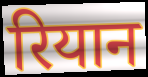
रियान